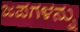
ಜಪಗಳನ್ನು